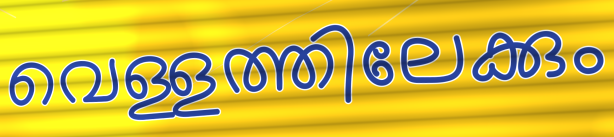
വെള്ളത്തിലേക്കും